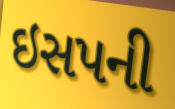
ઇસપની